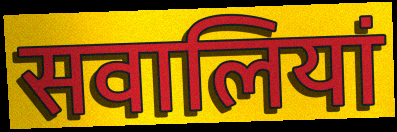
सवालियां